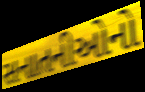
સનાતનીઓનો